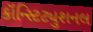
કૉન્સ્ટિટ્યુશનલ